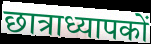
छात्राध्यापकों